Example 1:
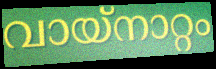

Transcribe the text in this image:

വായ്നാറ്റം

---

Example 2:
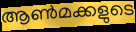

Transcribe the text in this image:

ആൺമക്കളുടെ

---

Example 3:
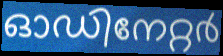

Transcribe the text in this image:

ഓഡിനേറ്റർ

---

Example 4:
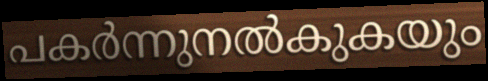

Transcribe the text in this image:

പകർന്നുനൽകുകയും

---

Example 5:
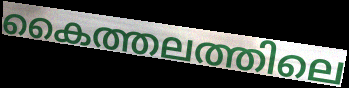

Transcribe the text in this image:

കൈത്തലത്തിലെ